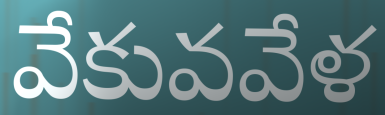
వేకువవేళ